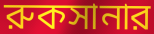
রুকসানার